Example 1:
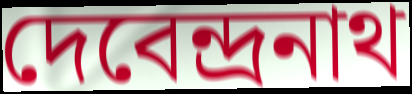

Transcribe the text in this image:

দেবেন্দ্রনাথ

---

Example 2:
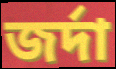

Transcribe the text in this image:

জর্দা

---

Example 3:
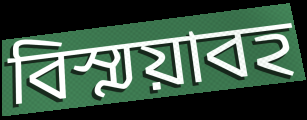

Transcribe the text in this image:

বিস্ময়াবহ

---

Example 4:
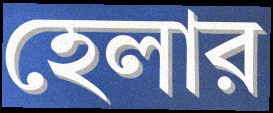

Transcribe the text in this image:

হেলার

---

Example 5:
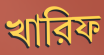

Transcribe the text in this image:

খারিফ